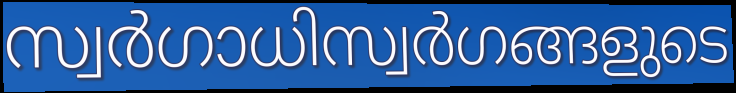
സ്വർഗാധിസ്വർഗങ്ങളുടെ